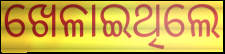
ଖେଳାଇଥିଲେ